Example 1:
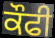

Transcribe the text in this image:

ਕੌਫੀ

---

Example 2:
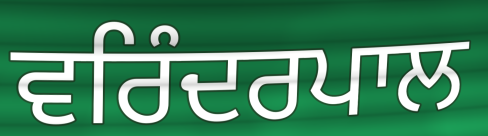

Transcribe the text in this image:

ਵਰਿੰਦਰਪਾਲ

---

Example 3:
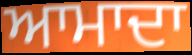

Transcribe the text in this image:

ਆਮਾਦਾ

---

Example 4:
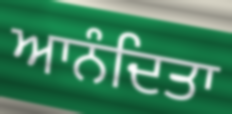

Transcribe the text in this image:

ਆਨੰਦਿਤਾ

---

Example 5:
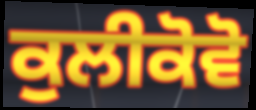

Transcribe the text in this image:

ਕੁਲੀਕੋਵੋ